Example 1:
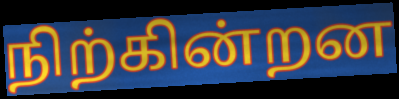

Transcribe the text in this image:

நிற்கின்றன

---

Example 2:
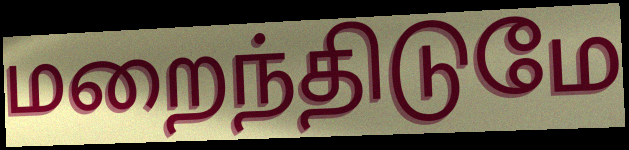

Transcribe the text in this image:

மறைந்திடுமே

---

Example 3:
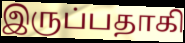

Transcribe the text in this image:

இருப்பதாகி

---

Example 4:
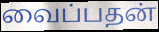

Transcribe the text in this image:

வைப்பதன்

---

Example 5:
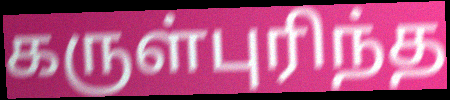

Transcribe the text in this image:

கருள்புரிந்த